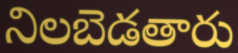
నిలబెడతారు